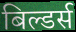
बिल्डर्स